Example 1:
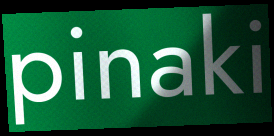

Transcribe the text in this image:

pinaki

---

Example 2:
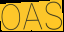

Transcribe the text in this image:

OAS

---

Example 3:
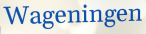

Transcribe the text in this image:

Wageningen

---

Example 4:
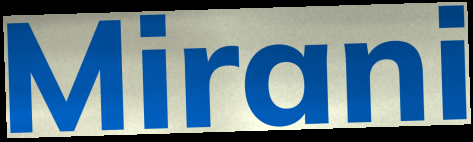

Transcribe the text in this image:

Mirani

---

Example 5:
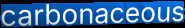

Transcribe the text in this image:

carbonaceous